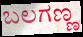
ಬಲಗಣ್ಣ